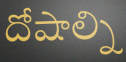
దోషాల్ని